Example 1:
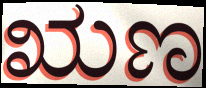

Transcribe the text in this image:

ಋಣ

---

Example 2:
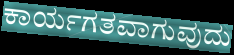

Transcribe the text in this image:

ಕಾರ್ಯಗತವಾಗುವುದು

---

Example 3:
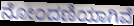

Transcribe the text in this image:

ನೋಂದಣಿಯಾಗಿವೆ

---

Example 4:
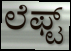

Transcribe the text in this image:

ಲೆಫ್ಟ್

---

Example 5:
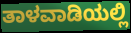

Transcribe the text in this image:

ತಾಳವಾಡಿಯಲ್ಲಿ